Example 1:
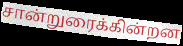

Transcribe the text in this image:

சான்றுரைக்கின்றன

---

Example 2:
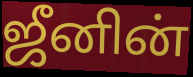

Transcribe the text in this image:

ஜீனின்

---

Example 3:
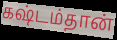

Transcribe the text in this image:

கஷ்டம்தான்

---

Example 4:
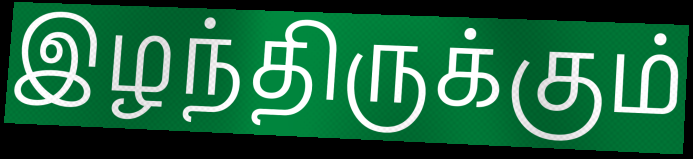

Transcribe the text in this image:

இழந்திருக்கும்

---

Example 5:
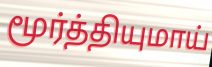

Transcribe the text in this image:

மூர்த்தியுமாய்